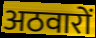
अठवारों